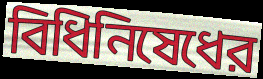
বিধিনিষেধের